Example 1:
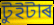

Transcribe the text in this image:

টুইটাৰ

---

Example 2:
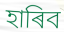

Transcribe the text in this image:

হাৰিব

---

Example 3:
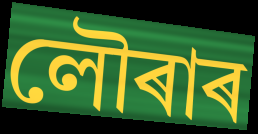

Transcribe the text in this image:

লৌৰাৰ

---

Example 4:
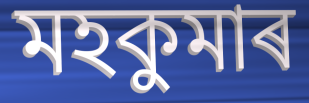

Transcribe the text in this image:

মহকুমাৰ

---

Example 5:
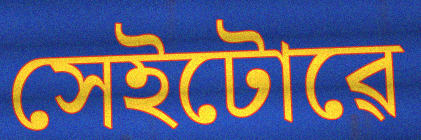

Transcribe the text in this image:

সেইটোৱে